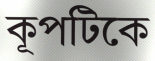
কূপটিকে